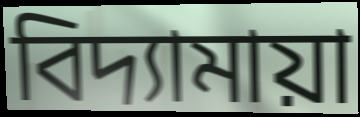
বিদ্যামায়া